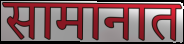
सामानात